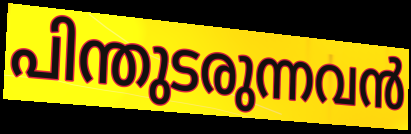
പിന്തുടരുന്നവൻ